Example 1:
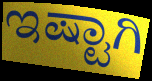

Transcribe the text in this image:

ಇಷ್ಟಾಗಿ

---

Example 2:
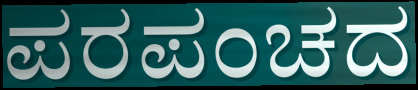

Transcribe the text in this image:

ಪರಪಂಚದ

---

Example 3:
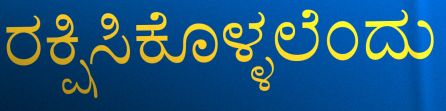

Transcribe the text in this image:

ರಕ್ಷಿಸಿಕೊಳ್ಳಲೆಂದು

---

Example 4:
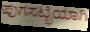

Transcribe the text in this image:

ಪುಗಸಟ್ಟೆಯಾಗಿ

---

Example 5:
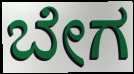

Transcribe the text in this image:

ಬೇಗ